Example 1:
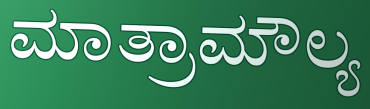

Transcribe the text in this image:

ಮಾತ್ರಾಮೌಲ್ಯ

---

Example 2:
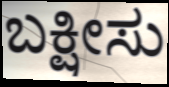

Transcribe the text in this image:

ಬಕ್ಷೀಸು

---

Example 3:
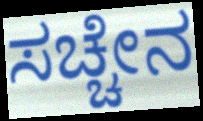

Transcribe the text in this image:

ಸಚ್ಚೇನ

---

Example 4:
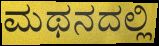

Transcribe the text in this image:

ಮಥನದಲ್ಲಿ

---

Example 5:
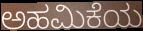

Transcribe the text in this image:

ಅಹಮಿಕೆಯ